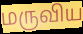
மருவிய